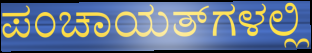
ಪಂಚಾಯತ್‌ಗಳಲ್ಲಿ